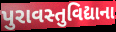
પુરાવસ્તુવિદ્યાના